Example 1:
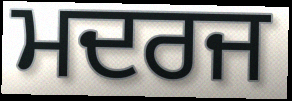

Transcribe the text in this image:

ਮਦਰਜ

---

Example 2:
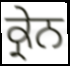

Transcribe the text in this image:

ਕ੍ਰੇਨ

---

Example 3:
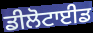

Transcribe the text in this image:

ਡੀਲੋਟਾਈਡ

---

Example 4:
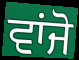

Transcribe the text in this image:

ਵਾਂਜੋ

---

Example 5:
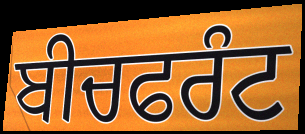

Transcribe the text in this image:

ਬੀਚਫਰੰਟ